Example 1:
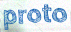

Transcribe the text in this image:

proto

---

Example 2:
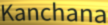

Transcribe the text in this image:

Kanchana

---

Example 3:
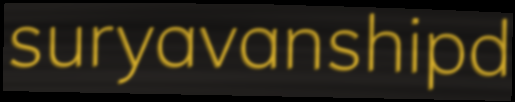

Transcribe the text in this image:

suryavanshipd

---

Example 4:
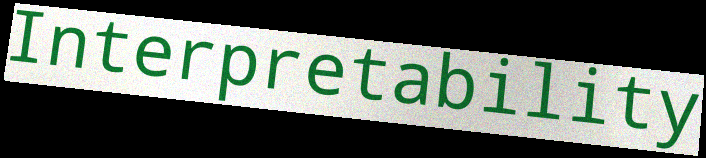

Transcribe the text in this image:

Interpretability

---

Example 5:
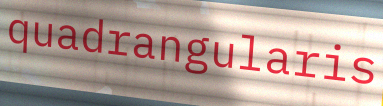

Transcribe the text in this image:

quadrangularis